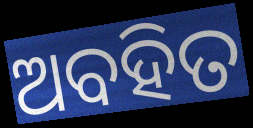
ଅବହିତ